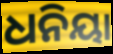
ଧନିୟା